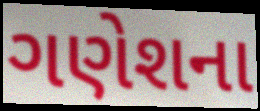
ગણેશના